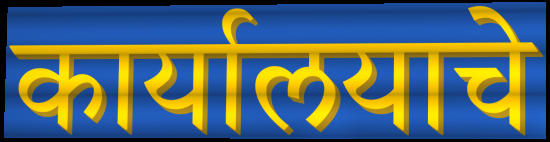
कार्यालयाचे